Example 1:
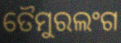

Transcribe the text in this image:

ତୈମୁରଲଂଗ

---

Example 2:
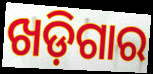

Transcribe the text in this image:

ଖଡ଼ିଗାର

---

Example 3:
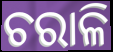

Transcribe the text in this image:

ଚରାଳି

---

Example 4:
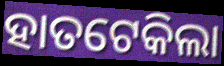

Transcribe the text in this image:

ହାତଟେକିଲା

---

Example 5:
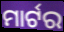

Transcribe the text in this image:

ମାର୍ଟର